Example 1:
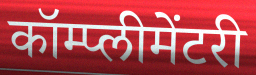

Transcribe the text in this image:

कॉम्प्लीमेंटरी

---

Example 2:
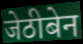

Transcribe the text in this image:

जेठीबेन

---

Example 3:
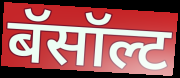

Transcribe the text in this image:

बॅसॉल्ट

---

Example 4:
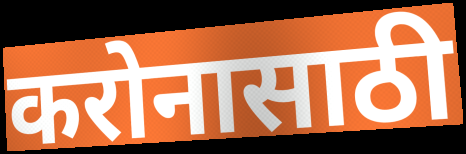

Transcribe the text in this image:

करोनासाठी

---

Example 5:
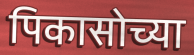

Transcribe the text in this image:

पिकासोच्या